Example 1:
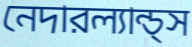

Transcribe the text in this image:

নেদারল্যান্ড্‌স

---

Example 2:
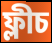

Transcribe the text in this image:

ফ্লীচ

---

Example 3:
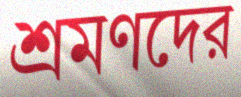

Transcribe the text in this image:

শ্রমণদের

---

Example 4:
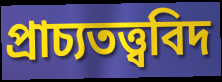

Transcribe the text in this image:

প্রাচ্যতত্ত্ববিদ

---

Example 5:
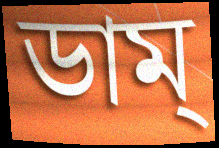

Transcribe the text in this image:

ডাম্